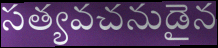
సత్యవచనుడైన